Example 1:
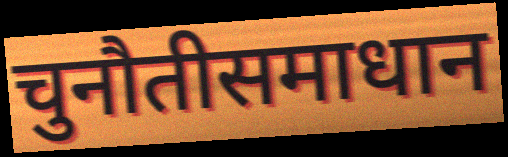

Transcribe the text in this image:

चुनौतीसमाधान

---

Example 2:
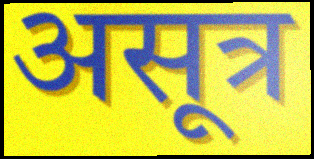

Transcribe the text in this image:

असूत्र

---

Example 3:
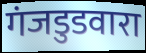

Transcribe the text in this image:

गंजडुडवारा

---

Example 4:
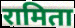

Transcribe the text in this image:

रामिता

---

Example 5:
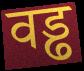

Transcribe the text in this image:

वड्ढ